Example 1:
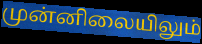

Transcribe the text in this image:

முன்னிலையிலும்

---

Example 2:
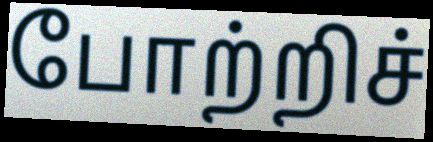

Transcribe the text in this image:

போற்றிச்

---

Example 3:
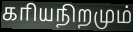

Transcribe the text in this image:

கரியநிறமும்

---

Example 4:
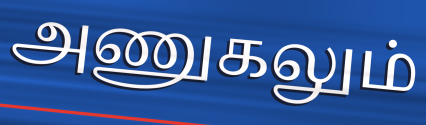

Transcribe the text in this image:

அணுகலும்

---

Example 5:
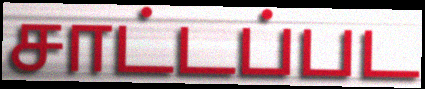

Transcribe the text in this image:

சாட்டப்பட